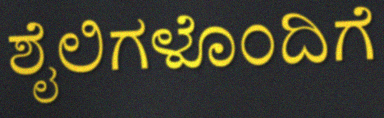
ಶೈಲಿಗಳೊಂದಿಗೆ